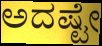
ಅದಷ್ಟೇ